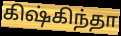
கிஷ்கிந்தா